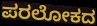
ಪರಲೋಕದ